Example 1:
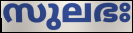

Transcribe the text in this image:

സുലഭഃ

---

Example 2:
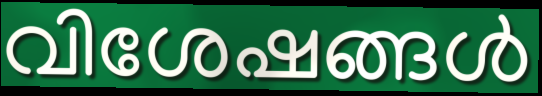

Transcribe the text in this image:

വിശേഷങ്ങൾ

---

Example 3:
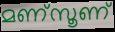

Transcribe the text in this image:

മണ്സൂണ്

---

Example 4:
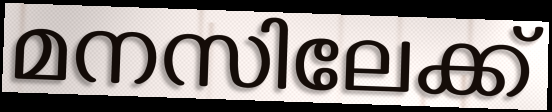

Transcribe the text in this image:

മനസിലേക്ക്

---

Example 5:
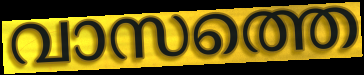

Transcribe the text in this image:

വാസത്തെ